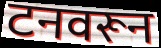
टनवरून